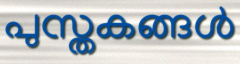
പുസ്തകങ്ങൾ